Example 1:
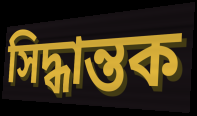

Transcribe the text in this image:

সিদ্ধান্তক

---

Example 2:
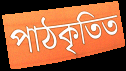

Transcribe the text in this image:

পাঠকৃতিত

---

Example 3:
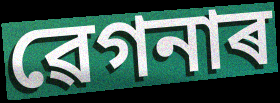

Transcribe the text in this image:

ৱেগনাৰ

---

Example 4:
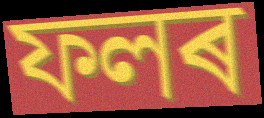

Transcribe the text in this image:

ফলৰ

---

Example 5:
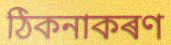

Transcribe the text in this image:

ঠিকনাকৰণ